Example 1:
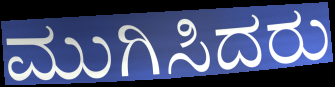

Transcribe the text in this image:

ಮುಗಿಸಿದರು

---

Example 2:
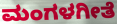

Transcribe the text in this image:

ಮಂಗಳಗೀತೆ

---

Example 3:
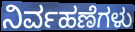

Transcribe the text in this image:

ನಿರ್ವಹಣೆಗಳು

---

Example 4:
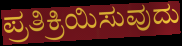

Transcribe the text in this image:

ಪ್ರತಿಕ್ರಿಯಿಸುವುದು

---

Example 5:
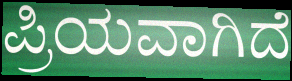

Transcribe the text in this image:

ಪ್ರಿಯವಾಗಿದೆ